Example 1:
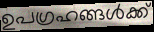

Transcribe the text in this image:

ഉപഗ്രഹങ്ങൾക്ക്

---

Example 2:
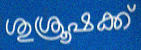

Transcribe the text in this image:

ശുശ്രൂഷക്ക്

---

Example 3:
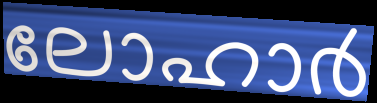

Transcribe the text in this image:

ലോഹാർ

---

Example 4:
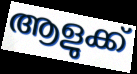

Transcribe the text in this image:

ആളുക്ക്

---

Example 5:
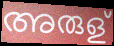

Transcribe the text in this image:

അരുള്